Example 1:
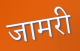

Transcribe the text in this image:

जामरी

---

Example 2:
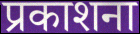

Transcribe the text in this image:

प्रकाशना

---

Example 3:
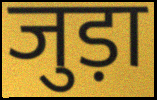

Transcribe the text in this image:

जुड़ा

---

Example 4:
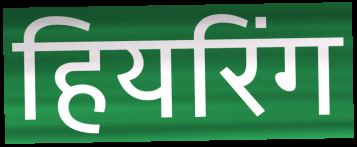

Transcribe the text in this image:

हियरिंग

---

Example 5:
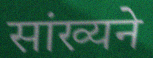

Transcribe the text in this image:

सांख्यने